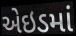
એઇડમાં